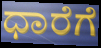
ಧಾರೆಗೆ